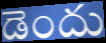
డెందు